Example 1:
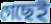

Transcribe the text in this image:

গেছেই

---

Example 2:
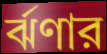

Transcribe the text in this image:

র্ঝণার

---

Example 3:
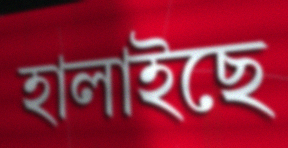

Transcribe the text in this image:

হালাইছে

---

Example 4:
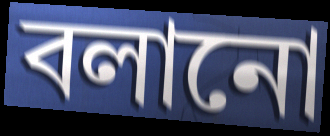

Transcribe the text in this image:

বলানো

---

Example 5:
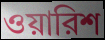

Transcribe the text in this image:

ওয়ারিশ